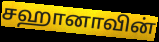
சஹானாவின்